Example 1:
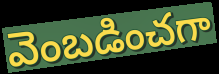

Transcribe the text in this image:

వెంబడించగా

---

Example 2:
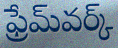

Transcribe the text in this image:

ఫ్రేమ్‌వర్క్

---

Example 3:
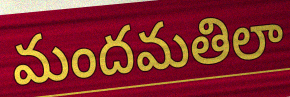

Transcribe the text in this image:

మందమతిలా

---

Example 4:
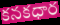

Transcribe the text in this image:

కనకధార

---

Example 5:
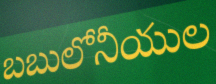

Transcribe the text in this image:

బబులోనీయుల